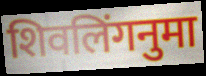
शिवलिंगनुमा